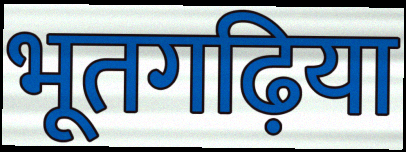
भूतगढ़िया